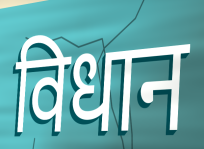
विधान